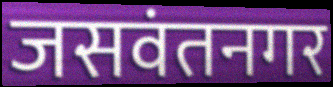
जसवंतनगर